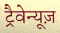
ट्रैवेन्यूज़